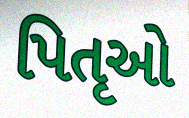
પિતૃઓ